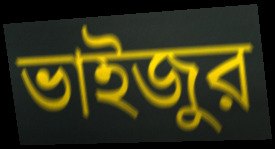
ভাইজুর